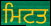
ਮਿਟਤ